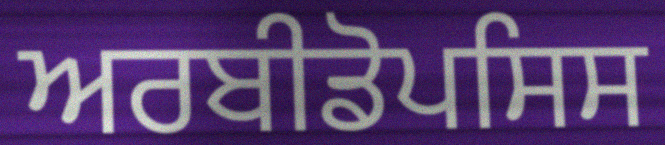
ਅਰਬੀਡੋਪਸਿਸ